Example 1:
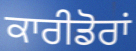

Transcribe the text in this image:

ਕਾਰੀਡੋਰਾਂ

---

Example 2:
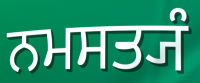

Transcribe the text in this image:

ਨਮਸਤ੍ਯੰ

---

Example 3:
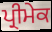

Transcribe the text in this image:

ਪ੍ਰੀਮੇਕ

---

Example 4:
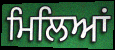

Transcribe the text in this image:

ਮਿਲਿਆਂ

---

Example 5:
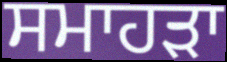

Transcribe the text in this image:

ਸਮਾਹੜਾ